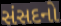
સંસદનો